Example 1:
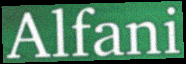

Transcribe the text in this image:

Alfani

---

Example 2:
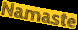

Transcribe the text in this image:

Namaste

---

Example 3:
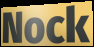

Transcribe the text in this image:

Nock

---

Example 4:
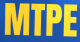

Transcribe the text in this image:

MTPE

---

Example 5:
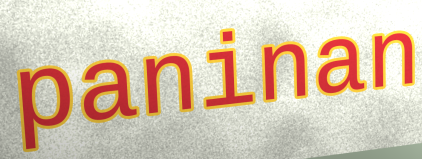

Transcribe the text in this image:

paninan